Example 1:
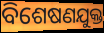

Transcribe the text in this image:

ବିଶେଷଣଯୁକ୍ତ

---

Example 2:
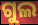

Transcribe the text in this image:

ଗୁଲ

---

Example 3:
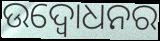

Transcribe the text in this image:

ଉଦ୍ବୋଧନର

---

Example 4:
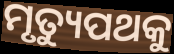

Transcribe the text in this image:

ମୃତ୍ୟୁପଥକୁ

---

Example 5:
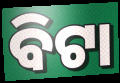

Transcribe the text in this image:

ବିଟା